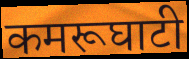
कमरूघाटी